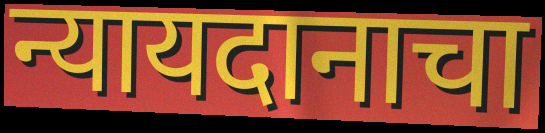
न्यायदानाचा